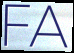
FA